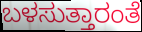
ಬಳಸುತ್ತಾರಂತೆ